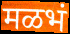
मळभं